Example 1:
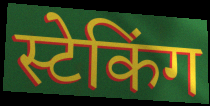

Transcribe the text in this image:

स्टेकिंग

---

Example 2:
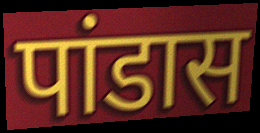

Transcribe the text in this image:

पांडास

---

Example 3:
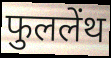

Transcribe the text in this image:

फुललेंथ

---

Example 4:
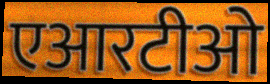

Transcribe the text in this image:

एआरटीओ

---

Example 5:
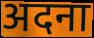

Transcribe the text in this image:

अदना